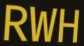
RWH